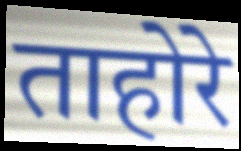
ताहोरे